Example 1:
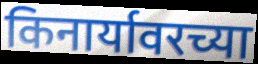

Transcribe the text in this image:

किनार्यावरच्या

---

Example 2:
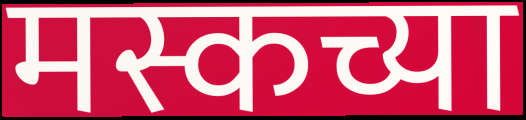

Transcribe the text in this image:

मस्कच्या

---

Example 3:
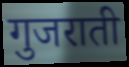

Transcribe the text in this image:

गुजराती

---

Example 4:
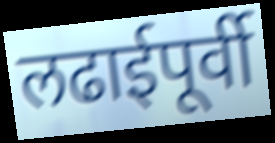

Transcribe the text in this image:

लढाईपूर्वी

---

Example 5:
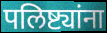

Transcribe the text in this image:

पलिष्ट्यांना